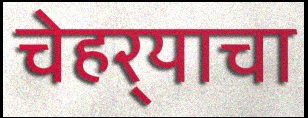
चेहर्‍याचा